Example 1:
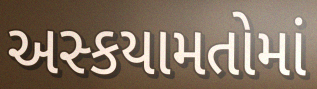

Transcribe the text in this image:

અસ્કયામતોમાં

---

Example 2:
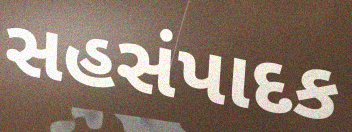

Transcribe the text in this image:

સહસંપાદક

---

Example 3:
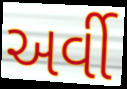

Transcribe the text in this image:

અર્વી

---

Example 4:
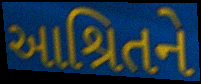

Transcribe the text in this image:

આશ્રિતને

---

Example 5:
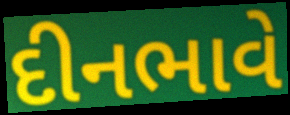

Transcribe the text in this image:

દીનભાવે